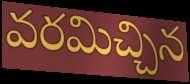
వరమిచ్చిన